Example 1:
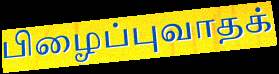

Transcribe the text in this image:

பிழைப்புவாதக்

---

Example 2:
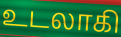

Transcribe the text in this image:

உடலாகி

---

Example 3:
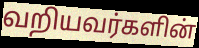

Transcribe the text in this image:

வறியவர்களின்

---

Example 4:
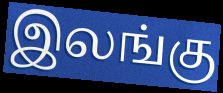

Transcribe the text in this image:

இலங்கு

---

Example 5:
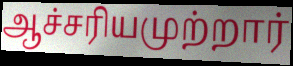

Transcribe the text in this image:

ஆச்சரியமுற்றார்